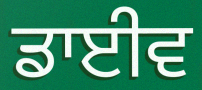
ਡਾਈਵ